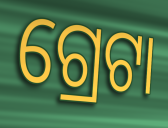
ଗ୍ରେଟା